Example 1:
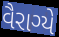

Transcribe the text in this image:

વૈરાગ્યે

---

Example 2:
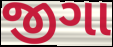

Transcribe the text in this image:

જીગા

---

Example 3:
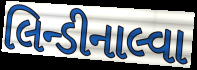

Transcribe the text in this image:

લિન્ડીનાલ્વા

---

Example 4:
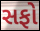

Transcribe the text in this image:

સફો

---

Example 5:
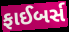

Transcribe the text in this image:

ફાઈબર્સ